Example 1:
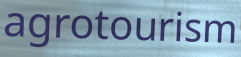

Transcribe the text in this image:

agrotourism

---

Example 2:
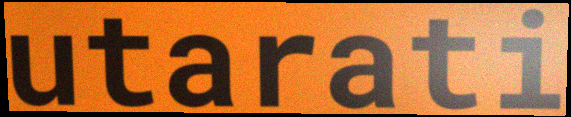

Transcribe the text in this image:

utarati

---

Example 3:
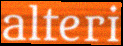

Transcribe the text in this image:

alteri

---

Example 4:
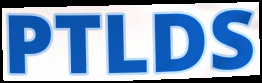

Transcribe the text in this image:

PTLDS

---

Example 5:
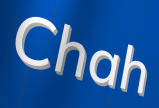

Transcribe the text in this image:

Chah